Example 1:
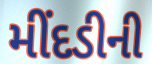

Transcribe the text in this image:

મીંદડીની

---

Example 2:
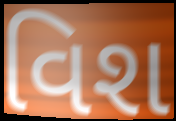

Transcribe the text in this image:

વિશ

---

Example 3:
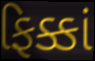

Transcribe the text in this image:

ફિક્કાં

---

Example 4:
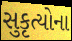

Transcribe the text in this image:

સુકૃત્યોના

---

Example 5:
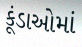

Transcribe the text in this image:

કૂંડાઓમાં